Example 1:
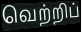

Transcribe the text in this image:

வெற்றிப்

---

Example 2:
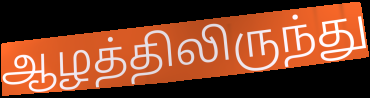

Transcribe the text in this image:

ஆழத்திலிருந்து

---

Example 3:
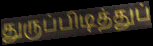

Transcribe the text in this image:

துருப்பிடித்துப்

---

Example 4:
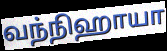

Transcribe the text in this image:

வந்நிஹாயா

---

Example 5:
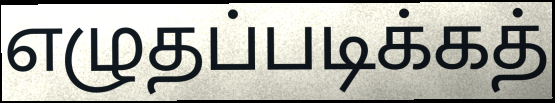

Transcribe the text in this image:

எழுதப்படிக்கத்